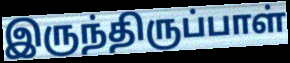
இருந்திருப்பாள்